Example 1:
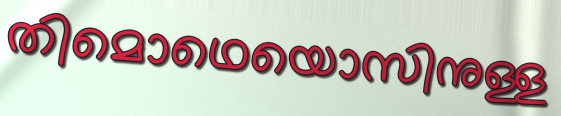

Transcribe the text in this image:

തിമൊഥെയൊസിനുള്ള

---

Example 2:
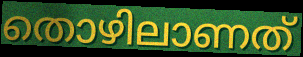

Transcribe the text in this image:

തൊഴിലാണത്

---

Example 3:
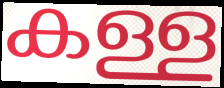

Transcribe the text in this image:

കള്ള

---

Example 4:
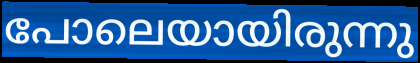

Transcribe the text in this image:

പോലെയായിരുന്നു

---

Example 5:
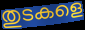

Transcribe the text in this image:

തുടകളെ